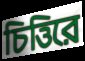
চিত্তিরে